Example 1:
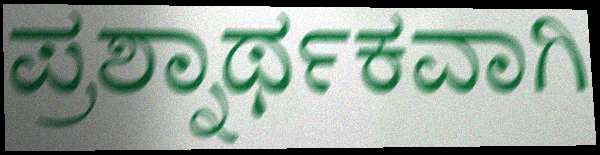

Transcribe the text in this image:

ಪ್ರಶ್ನಾರ್ಥಕವಾಗಿ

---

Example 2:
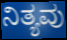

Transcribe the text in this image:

ನಿತ್ಯವು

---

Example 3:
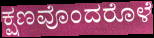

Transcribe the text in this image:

ಕ್ಷಣವೊಂದರೊಳೆ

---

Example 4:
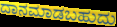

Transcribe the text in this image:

ದಾನಮಾಡಬಹುದು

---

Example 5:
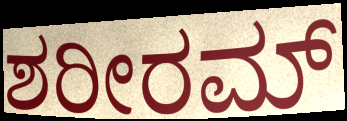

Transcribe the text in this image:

ಶರೀರಮ್